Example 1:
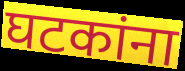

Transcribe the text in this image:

घटकांना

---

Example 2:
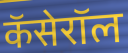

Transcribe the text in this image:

कॅसेरॉल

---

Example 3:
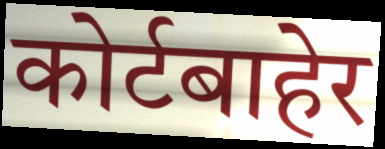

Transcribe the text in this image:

कोर्टबाहेर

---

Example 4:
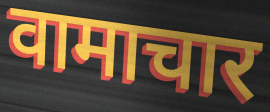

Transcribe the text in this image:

वामाचार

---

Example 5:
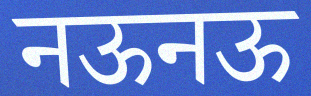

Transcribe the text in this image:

नऊनऊ